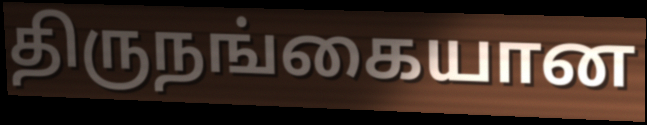
திருநங்கையான